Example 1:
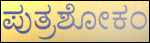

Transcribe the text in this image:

ಪುತ್ರಶೋಕಂ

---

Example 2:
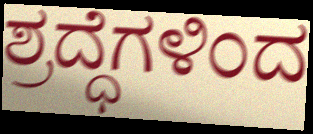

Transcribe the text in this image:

ಶ್ರದ್ಧೆಗಳಿಂದ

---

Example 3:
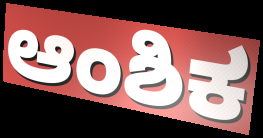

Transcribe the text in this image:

ಆಂಶಿಕ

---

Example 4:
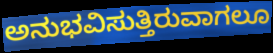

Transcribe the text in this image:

ಅನುಭವಿಸುತ್ತಿರುವಾಗಲೂ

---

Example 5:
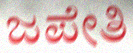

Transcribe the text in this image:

ಜಪೇತಿ